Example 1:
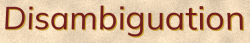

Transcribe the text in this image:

Disambiguation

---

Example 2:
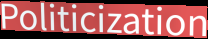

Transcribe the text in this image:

Politicization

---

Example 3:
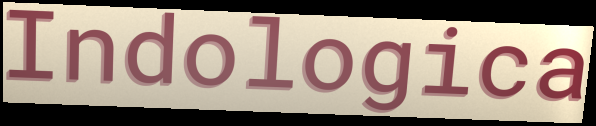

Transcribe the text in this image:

Indologica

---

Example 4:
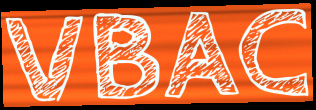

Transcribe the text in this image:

VBAC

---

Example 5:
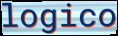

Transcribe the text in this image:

logico